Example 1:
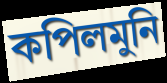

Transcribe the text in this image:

কপিলমুনি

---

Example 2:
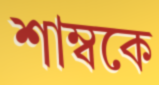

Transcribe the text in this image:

শাম্বকে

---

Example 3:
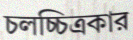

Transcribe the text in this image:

চলচ্চিত্রকার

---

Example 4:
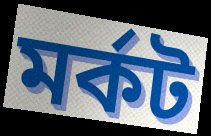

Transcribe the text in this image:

মর্কট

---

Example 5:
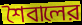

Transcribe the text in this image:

শৈবালের